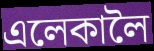
এলেকালৈ